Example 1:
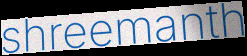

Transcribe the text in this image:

shreemanth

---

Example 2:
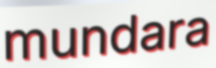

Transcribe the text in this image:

mundara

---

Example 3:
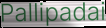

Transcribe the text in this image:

Pallipadai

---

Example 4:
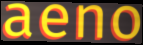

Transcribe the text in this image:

aeno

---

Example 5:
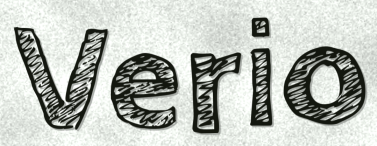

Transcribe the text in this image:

Verio